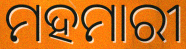
ମହମାରୀ